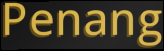
Penang